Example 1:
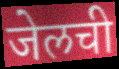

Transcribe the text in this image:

जेलची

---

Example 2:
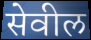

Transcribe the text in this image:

सेवील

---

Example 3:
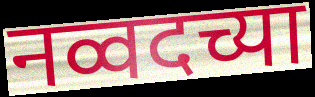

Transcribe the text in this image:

नव्वदच्या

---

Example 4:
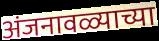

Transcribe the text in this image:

अंजनावळ्याच्या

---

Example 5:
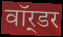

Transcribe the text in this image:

वॉर्डर